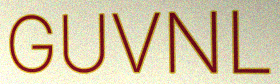
GUVNL